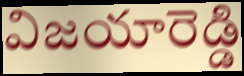
విజయారెడ్డి